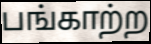
பங்காற்ற